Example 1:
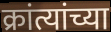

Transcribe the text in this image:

क्रांत्यांच्या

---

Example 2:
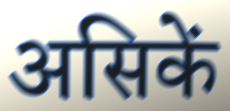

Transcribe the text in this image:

असिकें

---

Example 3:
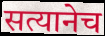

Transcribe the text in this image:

सत्यानेच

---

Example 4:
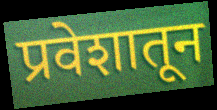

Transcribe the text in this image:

प्रवेशातून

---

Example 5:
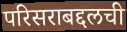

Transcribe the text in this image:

परिसराबद्दलची